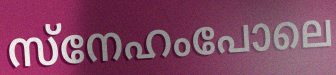
സ്നേഹംപോലെ